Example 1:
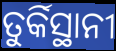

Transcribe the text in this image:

ତୁର୍କିସ୍ଥାନୀ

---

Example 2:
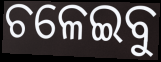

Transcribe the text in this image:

ଚଳେଇବୁ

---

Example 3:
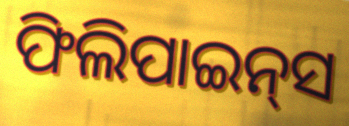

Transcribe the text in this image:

ଫିଲିପାଇନ୍‍ସ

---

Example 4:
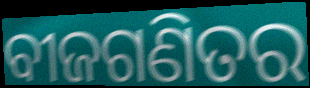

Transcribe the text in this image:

ବୀଜଗଣିତର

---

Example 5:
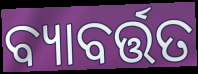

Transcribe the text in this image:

ବ୍ୟାବର୍ତ୍ତତ